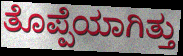
ತೊಪ್ಪೆಯಾಗಿತ್ತು